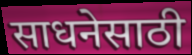
साधनेसाठी